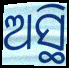
ଅସ୍ଥି